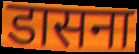
डासना